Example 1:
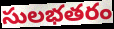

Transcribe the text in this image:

సులభతరం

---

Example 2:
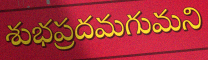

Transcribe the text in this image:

శుభప్రదమగుమని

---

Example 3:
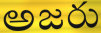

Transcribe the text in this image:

అజరు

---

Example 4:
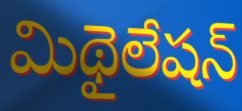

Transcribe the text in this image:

మిథైలేషన్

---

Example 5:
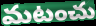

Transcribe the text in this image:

మటంచు